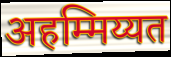
अहम्मिय्यत